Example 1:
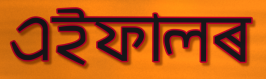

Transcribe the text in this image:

এইফালৰ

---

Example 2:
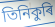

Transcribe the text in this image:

তিনিকুৰি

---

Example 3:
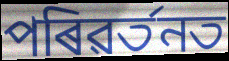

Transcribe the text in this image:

পৰিৱৰ্তনত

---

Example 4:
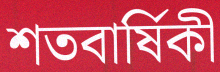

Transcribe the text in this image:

শতবাৰ্ষিকী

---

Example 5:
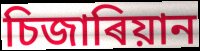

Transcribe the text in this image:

চিজাৰিয়ান